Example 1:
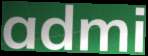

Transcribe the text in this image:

admi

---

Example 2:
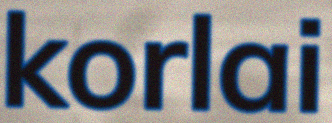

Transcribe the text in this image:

korlai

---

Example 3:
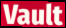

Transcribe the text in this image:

Vault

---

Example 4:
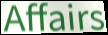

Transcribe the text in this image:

Affairs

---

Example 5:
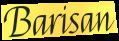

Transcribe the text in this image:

Barisan